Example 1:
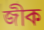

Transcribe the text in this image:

জীক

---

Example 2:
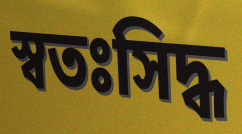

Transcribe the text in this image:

স্বতঃসিদ্ধ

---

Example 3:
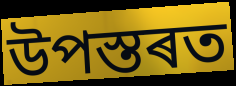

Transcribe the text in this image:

উপস্তৰত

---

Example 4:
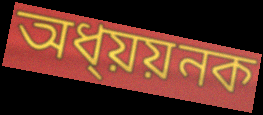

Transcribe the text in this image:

অধ্য়য়নক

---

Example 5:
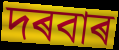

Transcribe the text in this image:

দৰবাৰ